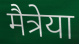
मैत्रेया